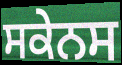
ਸਕੇਨਸ